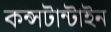
কন্সটান্টাইন